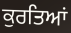
ਕੁਰਤਿਆਂ